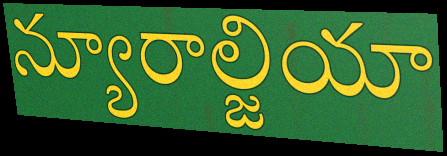
న్యూరాల్జియా